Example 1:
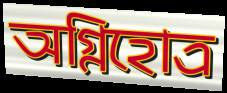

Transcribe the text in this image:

অগ্নিহোত্র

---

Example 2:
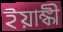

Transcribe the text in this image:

ইয়াঙ্কী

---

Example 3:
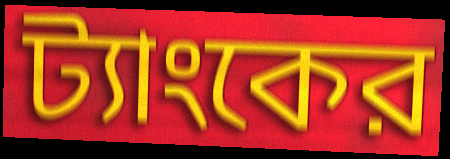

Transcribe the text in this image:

ট্যাংকের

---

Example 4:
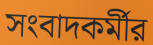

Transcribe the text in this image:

সংবাদকর্মীর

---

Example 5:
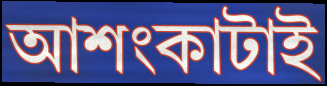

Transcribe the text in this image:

আশংকাটাই